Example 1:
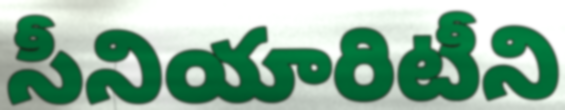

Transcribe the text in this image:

సీనియారిటీని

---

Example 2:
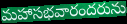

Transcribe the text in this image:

మహాసభవారందరును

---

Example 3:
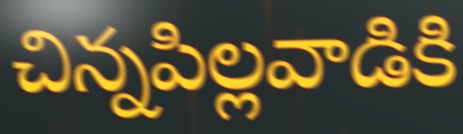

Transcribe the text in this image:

చిన్నపిల్లవాడికి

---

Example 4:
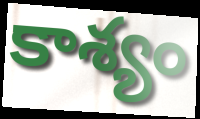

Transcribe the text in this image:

కాశ్యం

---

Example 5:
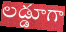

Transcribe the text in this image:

లడ్డూగా